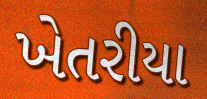
ખેતરીયા